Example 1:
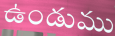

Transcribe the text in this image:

ఉండుము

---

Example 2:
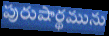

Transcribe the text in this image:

పురుషార్థమును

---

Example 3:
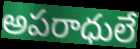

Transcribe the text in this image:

అపరాధులే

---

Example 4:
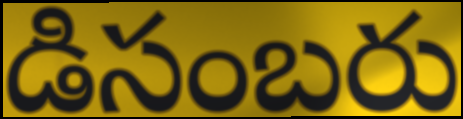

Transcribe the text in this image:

డిసంబరు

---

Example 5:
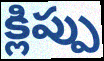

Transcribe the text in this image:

క్లిప్పు